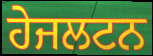
ਹੇਜਲਟਨ